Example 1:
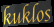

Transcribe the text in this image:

kuklos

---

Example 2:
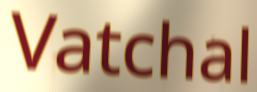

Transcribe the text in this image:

Vatchal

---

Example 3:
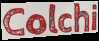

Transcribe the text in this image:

Colchi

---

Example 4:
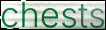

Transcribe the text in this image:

chests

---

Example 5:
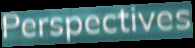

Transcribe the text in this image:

Perspectives